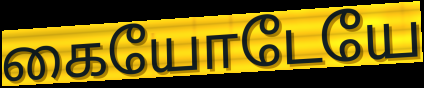
கையோடேயே